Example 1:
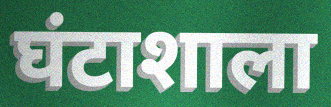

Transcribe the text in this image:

घंटाशाला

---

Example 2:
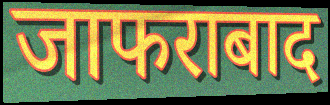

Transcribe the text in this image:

जाफराबाद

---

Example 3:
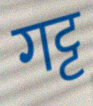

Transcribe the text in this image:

गट्ट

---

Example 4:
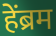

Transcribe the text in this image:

हेंब्रम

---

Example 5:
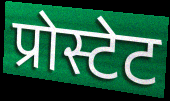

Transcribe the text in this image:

प्रोस्टेट